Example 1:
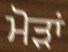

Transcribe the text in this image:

ਮੋੜਾਂ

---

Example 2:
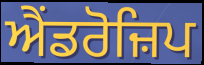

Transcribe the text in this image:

ਐਂਡਰੋਜ਼ਿਪ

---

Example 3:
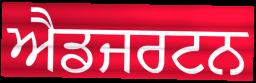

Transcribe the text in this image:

ਐਡਜਰਟਨ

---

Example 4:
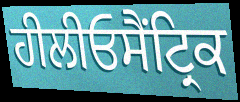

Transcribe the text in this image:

ਹੀਲੀਓਸੈਂਟ੍ਰਿਕ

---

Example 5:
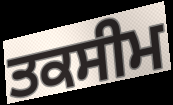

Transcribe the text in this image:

ਤਕਸੀਮ